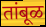
तांबूळ